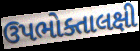
ઉપભોક્તાલક્ષી